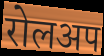
रोलअप